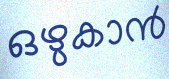
ഒഴുകാൻ